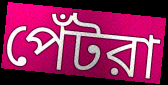
পেঁটরা